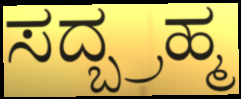
ಸದ್ಬ್ರಹ್ಮ